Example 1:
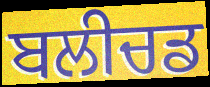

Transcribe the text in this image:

ਬਲੀਚਡ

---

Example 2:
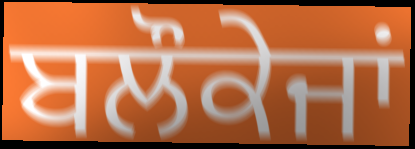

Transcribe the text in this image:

ਬਲੌਕੇਜਾਂ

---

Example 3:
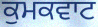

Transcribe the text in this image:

ਕੁਮਕਵਾਟ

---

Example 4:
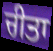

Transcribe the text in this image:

ਚੀਤਾ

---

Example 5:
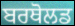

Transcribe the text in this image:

ਬਰਥੋਲਡ